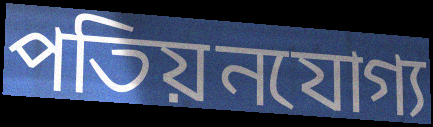
পতিয়নযোগ্য